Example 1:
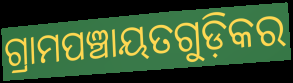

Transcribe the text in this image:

ଗ୍ରାମପଞ୍ଚାୟତଗୁଡ଼ିକର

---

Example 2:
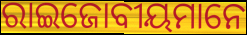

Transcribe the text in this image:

ରାଇଜୋବୀୟମାନେ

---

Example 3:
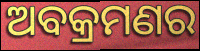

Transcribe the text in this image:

ଅବକ୍ରମଣର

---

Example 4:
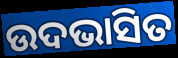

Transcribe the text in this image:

ଉଦଭାସିତ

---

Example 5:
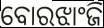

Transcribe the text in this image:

ବୋରଝାଂଜି